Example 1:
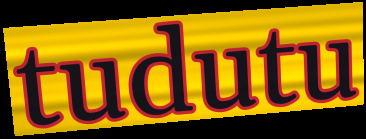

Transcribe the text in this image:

tudutu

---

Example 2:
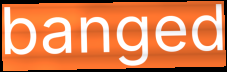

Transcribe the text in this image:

banged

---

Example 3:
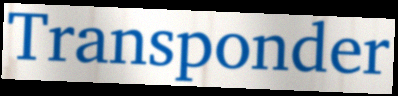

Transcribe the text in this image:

Transponder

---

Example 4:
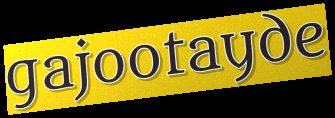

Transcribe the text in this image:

gajootayde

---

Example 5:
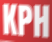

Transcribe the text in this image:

KPH